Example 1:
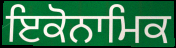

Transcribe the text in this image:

ਇਕੋਨਾਮਿਕ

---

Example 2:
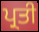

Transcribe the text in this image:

ਪ੍ਰਤੀ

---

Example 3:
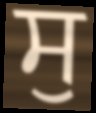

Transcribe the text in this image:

ਸੁ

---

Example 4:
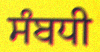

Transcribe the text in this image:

ਸੰਬਧੀ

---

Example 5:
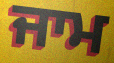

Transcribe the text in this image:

ਜਾਮ